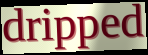
dripped